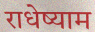
राधेष्याम